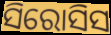
ସିରୋସିସ